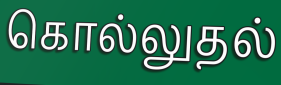
கொல்லுதல்